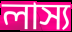
লাস্য